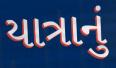
યાત્રાનું